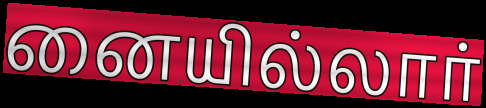
னையில்லார்